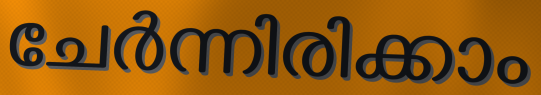
ചേർന്നിരിക്കാം